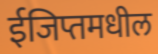
ईजिप्तमधील